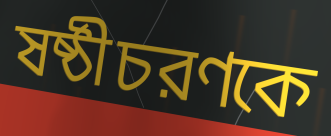
ষষ্ঠীচরণকে